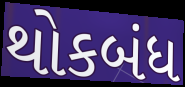
થોકબંધ